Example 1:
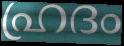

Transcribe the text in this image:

ഹ്രദം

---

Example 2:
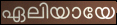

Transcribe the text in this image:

ഏലിയായേ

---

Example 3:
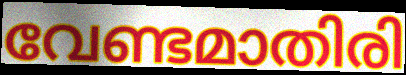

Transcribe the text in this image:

വേണ്ടമാതിരി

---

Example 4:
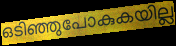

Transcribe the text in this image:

ഒടിഞ്ഞുപോകുകയില്ല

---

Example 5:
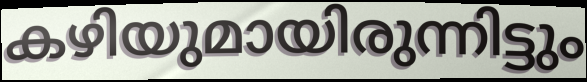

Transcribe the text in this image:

കഴിയുമായിരുന്നിട്ടും